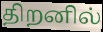
திறனில்